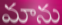
మాను